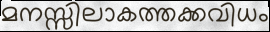
മനസ്സിലാകത്തക്കവിധം